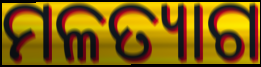
ମଳତ୍ୟାଗ